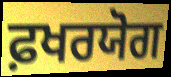
ਫ਼ਖਰਯੋਗ